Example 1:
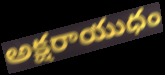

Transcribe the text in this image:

అక్షరాయుధం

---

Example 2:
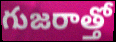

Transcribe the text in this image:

గుజరాత్తో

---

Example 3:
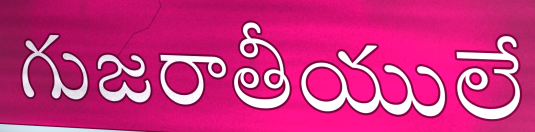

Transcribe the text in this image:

గుజరాతీయులే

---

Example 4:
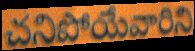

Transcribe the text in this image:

చనిపోయేవారిని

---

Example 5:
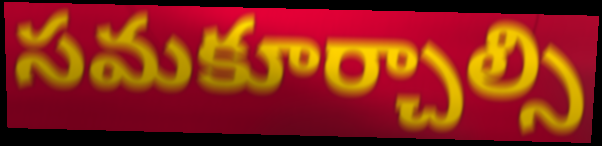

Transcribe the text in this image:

సమకూర్చాల్సి